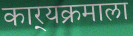
कार्यक्रमाला